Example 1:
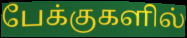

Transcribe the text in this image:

பேக்குகளில்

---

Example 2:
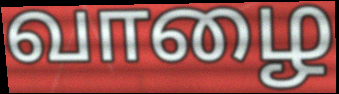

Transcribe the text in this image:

வாழை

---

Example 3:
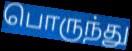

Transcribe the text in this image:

பொருந்து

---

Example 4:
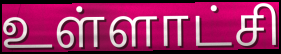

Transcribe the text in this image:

உள்ளாட்சி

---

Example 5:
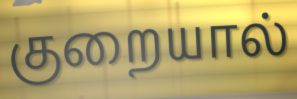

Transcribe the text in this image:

குறையால்